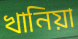
খানিয়া